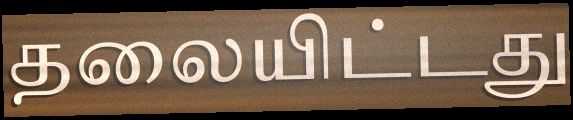
தலையிட்டது